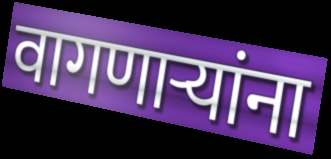
वागणार्‍यांना